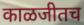
काळजीतच